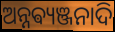
ଅନ୍ନଵ୍ୟଞ୍ଜନାଦି